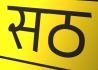
सठ